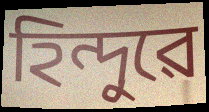
হিন্দুৱে